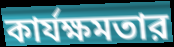
কার্যক্ষমতার